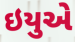
ઇયુએ